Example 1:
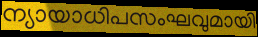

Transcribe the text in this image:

ന്യായാധിപസംഘവുമായി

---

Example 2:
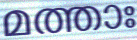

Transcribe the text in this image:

മത്താഃ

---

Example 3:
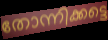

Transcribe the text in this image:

തോന്നിക്കട്ടെ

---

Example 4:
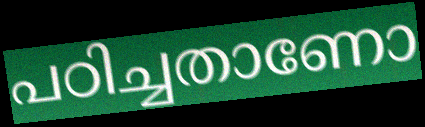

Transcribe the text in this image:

പഠിച്ചതാണോ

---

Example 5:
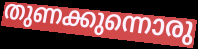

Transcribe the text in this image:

തുണക്കുന്നൊരു